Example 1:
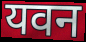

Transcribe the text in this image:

यवन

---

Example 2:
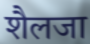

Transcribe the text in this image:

शैलजा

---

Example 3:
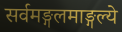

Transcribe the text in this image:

सर्वमङ्गलमाङ्गल्ये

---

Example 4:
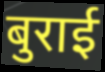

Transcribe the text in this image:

बुराई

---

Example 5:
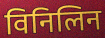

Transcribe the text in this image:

विनिलिन